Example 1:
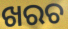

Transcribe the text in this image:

ଖରଚ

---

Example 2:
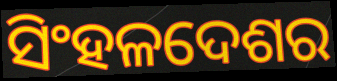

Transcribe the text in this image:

ସିଂହଳଦେଶର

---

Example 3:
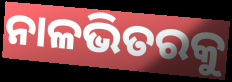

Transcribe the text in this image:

ନାଳଭିତରକୁ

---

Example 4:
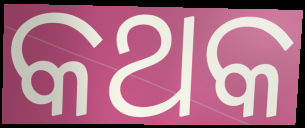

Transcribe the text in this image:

କଥକ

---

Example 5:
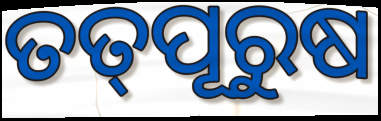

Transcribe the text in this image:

ତତ୍‌ପୂରୁଷ